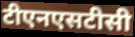
टीएनएसटीसी